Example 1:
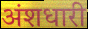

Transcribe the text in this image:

अंशधारी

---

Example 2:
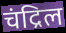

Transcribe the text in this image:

चंद्रिल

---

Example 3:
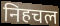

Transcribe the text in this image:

निहचल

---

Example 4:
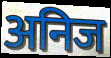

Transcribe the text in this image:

अनिज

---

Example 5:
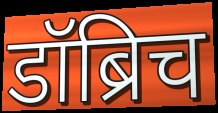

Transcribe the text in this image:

डॉब्रिच